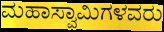
ಮಹಾಸ್ವಾಮಿಗಳವರು